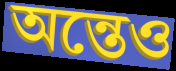
অন্তেও